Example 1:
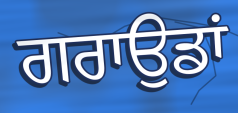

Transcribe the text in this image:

ਗਰਾਉਡਾਂ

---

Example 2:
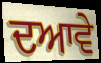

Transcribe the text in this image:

ਦਆਵੇ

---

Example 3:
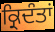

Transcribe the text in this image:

ਕ੍ਰਿਦੰਤਾਂ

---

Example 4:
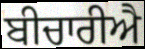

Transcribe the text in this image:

ਬੀਚਾਰੀਐ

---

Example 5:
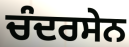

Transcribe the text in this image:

ਚੰਦਰਸੇਨ